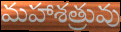
మహాశత్రువు